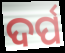
ଦର୍ପ